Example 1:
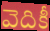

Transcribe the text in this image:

వెదికీ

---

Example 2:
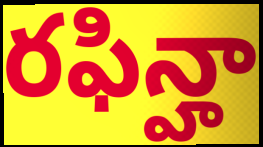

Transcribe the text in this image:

రఫిన్హా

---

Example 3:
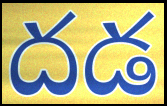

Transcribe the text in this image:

దడ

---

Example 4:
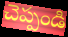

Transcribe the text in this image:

చెప్పండి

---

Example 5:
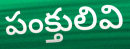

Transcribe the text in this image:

పంక్తులివి